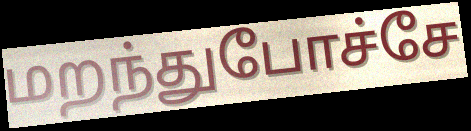
மறந்துபோச்சே